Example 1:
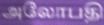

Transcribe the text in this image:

அலோபதி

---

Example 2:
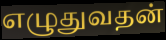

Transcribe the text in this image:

எழுதுவதன்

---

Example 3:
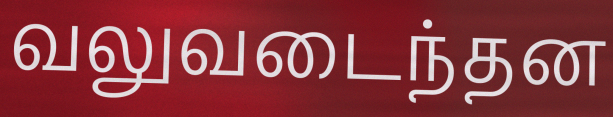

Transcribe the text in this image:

வலுவடைந்தன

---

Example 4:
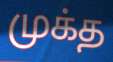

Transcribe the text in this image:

முக்த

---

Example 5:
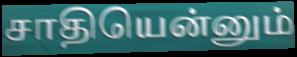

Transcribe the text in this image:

சாதியென்னும்